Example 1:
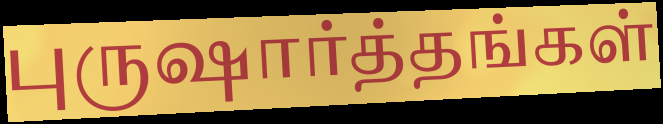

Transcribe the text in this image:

புருஷார்த்தங்கள்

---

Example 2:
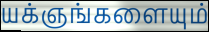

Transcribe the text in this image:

யக்ஞங்களையும்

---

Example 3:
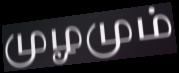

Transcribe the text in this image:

முழமும்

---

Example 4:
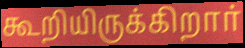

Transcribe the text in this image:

கூறியிருக்கிறார்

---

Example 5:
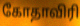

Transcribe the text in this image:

கோதாவிரி